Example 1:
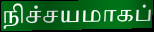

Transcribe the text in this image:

நிச்சயமாகப்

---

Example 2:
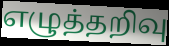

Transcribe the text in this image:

எழுத்தறிவு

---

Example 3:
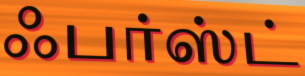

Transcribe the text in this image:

ஃபர்ஸ்ட்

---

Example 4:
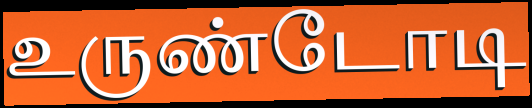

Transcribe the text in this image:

உருண்டோடி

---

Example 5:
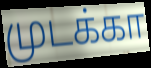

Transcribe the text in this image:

முடக்கா